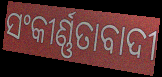
ସଂକୀର୍ଣ୍ଣତାବାଦୀ